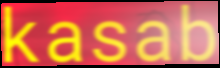
kasab